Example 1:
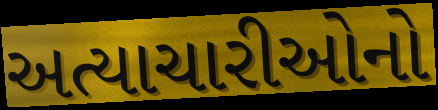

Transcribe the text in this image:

અત્યાચારીઓનો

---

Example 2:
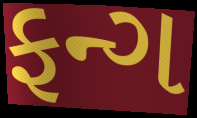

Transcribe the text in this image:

ફન્ગ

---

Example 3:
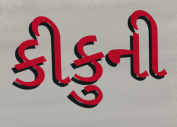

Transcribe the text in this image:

કીકુની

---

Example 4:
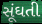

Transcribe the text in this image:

સૂંઘતી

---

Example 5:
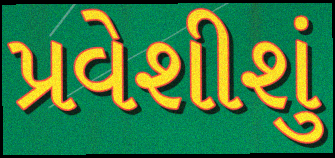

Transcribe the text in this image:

પ્રવેશીશું